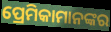
ପ୍ରେମିକାମାନଙ୍କର